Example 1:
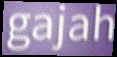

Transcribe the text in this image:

gajah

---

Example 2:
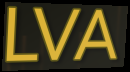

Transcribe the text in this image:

LVA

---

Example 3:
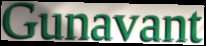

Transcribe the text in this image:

Gunavant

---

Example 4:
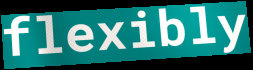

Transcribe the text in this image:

flexibly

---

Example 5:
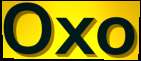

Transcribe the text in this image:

Oxo